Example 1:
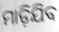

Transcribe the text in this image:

ମାଡ଼ିଯିବ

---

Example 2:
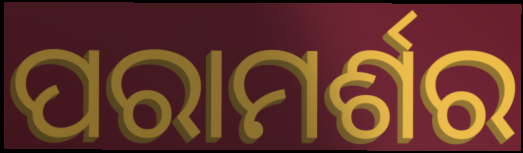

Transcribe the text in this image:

ପରାମର୍ଶର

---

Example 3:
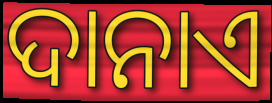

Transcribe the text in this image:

ଦାନାଏ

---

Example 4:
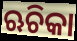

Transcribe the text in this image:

ଋଚିକା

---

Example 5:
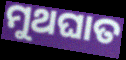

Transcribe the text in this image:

ମୁଥଘାତ